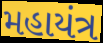
મહાયંત્ર